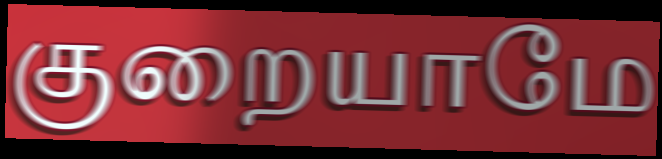
குறையாமே